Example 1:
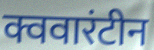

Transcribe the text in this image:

क्ववारंटीन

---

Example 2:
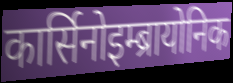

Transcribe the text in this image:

कार्सिनोइम्ब्रायोनिक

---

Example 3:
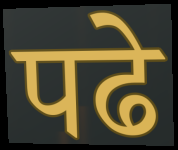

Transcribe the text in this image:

पढे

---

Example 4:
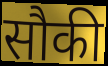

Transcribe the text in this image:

सौकी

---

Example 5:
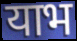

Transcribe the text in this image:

याभ